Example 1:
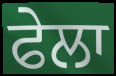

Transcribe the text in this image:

ਫੇਲਾ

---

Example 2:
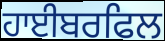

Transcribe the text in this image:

ਹਾਈਬਰਫਿਲ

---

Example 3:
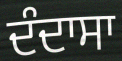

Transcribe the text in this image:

ਦੰਦਾਸਾ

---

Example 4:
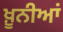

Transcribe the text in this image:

ਖ਼ੂਨੀਆਂ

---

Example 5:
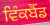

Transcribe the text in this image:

ਵਿੰਕਬੈੱਡ